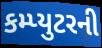
કમ્પ્યુટરની